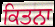
ਕਿਤਨਾ